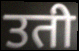
उती